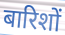
बारिशों